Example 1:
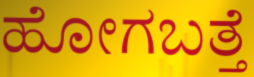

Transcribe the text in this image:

ಹೋಗಬತ್ತೆ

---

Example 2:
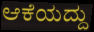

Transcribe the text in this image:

ಆಕೆಯದ್ದು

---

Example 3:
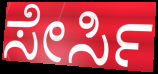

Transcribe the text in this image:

ಸೇರ್ಸಿ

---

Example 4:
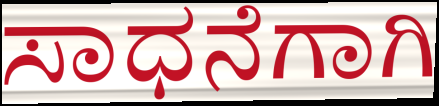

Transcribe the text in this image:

ಸಾಧನೆಗಾಗಿ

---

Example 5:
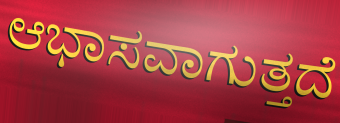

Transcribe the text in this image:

ಆಭಾಸವಾಗುತ್ತದೆ